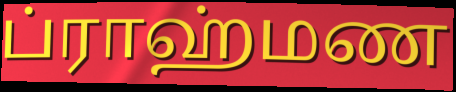
ப்ராஹ்மண